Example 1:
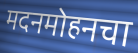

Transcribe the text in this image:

मदनमोहनचा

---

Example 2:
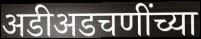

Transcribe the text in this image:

अडीअडचणींच्या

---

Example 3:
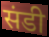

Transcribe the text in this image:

संडी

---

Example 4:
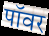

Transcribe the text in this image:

पॉवर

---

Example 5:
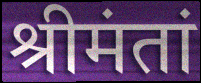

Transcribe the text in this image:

श्रीमंतां